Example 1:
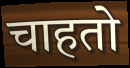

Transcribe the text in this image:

चाहतो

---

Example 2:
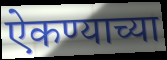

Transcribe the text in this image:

ऐकण्याच्या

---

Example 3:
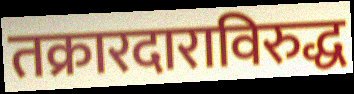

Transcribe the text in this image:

तक्रारदाराविरुद्ध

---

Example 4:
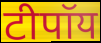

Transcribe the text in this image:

टीपॉय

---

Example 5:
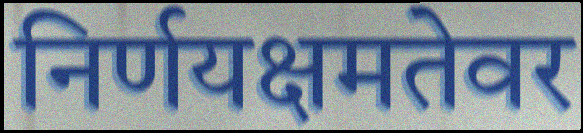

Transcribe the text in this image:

निर्णयक्षमतेवर